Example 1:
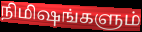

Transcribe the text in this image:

நிமிஷங்களும்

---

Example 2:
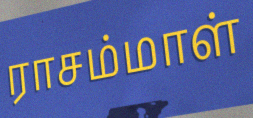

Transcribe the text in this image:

ராசம்மாள்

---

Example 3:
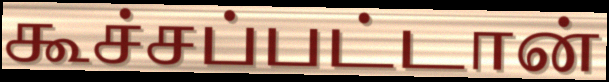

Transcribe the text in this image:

கூச்சப்பட்டான்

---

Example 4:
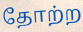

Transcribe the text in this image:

தோற்ற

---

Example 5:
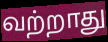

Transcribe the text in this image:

வற்றாது